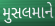
મુસલમાને